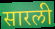
सारली